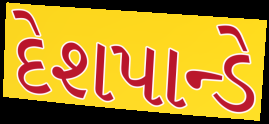
દેશપાન્ડે